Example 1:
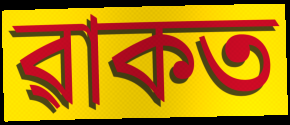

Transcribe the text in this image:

ৱাকত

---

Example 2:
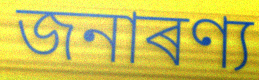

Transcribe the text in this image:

জনাৰণ্য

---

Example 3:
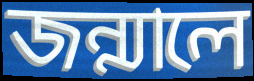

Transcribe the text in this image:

জন্মালে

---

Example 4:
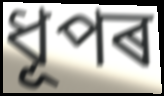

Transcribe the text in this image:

ধূপৰ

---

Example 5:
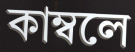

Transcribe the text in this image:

কাম্বলে